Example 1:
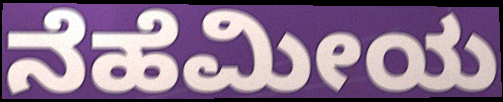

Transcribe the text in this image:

ನೆಹೆಮೀಯ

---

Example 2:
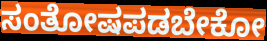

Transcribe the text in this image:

ಸಂತೋಷಪಡಬೇಕೋ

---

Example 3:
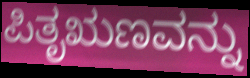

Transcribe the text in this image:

ಪಿತೃಋಣವನ್ನು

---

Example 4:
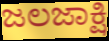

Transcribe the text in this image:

ಜಲಜಾಕ್ಷಿ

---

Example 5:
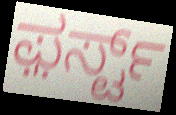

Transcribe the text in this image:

ಫ಼ರ್ಸ್ಟ್